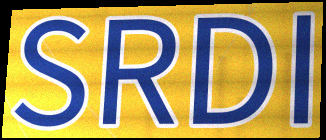
SRDI